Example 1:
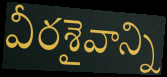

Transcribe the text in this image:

వీరశైవాన్ని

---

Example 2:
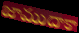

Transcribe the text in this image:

జాముదాకా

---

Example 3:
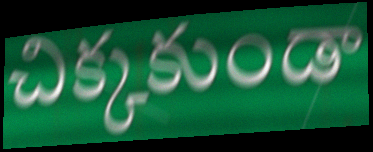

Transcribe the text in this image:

చిక్కకుండా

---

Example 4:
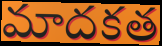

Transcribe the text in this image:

మాదకత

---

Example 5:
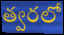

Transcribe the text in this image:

త్వరలో